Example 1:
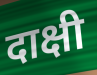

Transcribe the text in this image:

दाक्षी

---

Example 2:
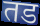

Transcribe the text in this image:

तड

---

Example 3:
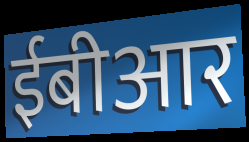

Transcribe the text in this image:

ईबीआर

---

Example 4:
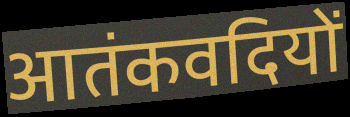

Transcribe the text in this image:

आतंकवदियों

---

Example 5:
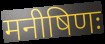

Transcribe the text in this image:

मनीषिणः